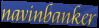
navinbanker